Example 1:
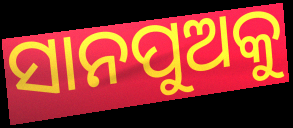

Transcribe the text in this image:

ସାନପୁଅକୁ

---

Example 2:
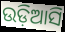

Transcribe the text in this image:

ଉଡ଼ିଆସି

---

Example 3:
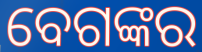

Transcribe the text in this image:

ବେଗଙ୍କର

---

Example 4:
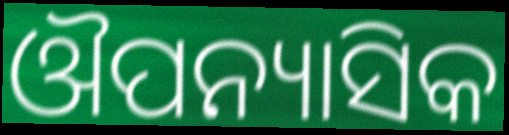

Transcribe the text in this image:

ଔପନ୍ୟାସିକ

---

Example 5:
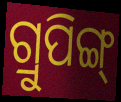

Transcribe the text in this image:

ଗ୍ରୁପିଙ୍ଗ୍